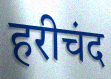
हरीचंद